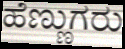
ಹೆಣ್ಣುಗರು